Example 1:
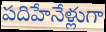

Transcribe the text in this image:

పదిహేనేళ్లుగా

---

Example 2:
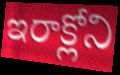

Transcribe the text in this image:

ఇరాక్లోని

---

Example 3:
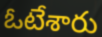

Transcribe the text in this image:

ఓటేశారు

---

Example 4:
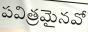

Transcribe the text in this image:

పవిత్రమైనవో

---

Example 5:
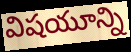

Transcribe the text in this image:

విషయూన్ని